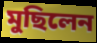
মুছিলেন